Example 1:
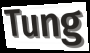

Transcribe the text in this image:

Tung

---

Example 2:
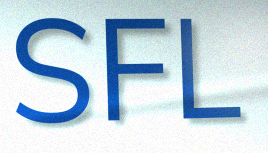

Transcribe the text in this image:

SFL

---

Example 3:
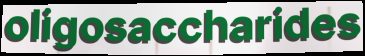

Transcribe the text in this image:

oligosaccharides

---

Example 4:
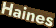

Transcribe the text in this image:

Haines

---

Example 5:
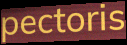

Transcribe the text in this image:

pectoris